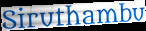
Siruthambu